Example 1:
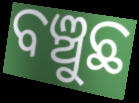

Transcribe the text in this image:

ବଞ୍ଚୁଛ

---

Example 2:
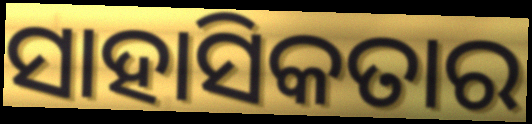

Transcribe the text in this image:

ସାହାସିକତାର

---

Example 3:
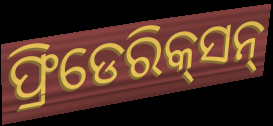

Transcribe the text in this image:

ଫ୍ରିଡେରିକ୍‌ସନ୍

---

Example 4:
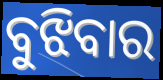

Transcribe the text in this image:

ବୁଝିବାର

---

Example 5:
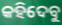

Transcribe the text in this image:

କହିଦେବୁ